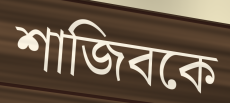
শাজিবকে